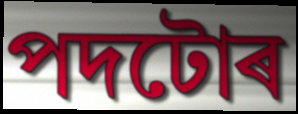
পদটোৰ